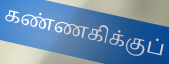
கண்ணகிக்குப்